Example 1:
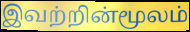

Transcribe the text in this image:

இவற்றின்மூலம்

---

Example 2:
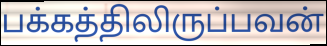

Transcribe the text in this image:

பக்கத்திலிருப்பவன்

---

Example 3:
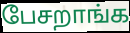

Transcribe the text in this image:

பேசறாங்க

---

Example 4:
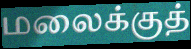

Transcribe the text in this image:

மலைக்குத்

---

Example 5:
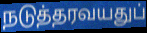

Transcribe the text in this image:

நடுத்தரவயதுப்